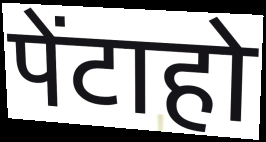
पेंटाहो